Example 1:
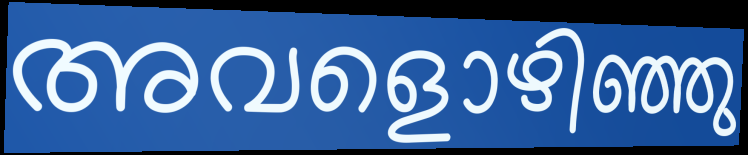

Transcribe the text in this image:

അവളൊഴിഞ്ഞു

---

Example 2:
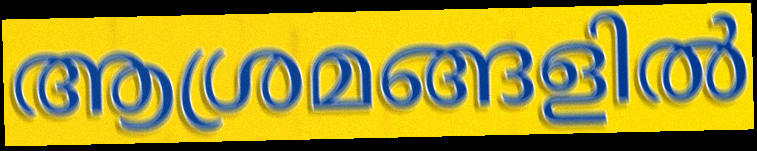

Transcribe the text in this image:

ആശ്രമങ്ങളിൽ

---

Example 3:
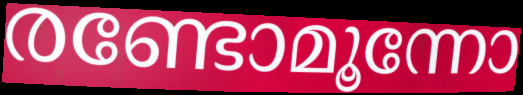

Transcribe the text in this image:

രണ്ടോമൂന്നോ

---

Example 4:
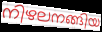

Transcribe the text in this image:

നിഴലനങ്ങിയ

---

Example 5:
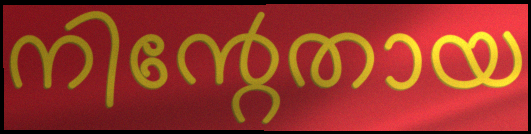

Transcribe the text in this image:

നിന്റേതായ